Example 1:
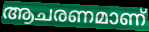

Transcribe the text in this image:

ആചരണമാണ്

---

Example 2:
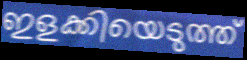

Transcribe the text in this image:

ഇളക്കിയെടുത്ത്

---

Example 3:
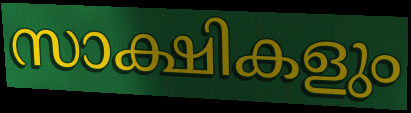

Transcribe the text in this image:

സാക്ഷികളും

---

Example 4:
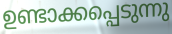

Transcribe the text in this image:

ഉണ്ടാക്കപ്പെടുന്നു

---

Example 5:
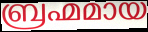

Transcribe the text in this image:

ബ്രഹ്മമായ